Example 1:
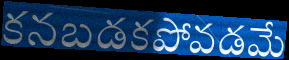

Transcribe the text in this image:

కనబడకపోవడమే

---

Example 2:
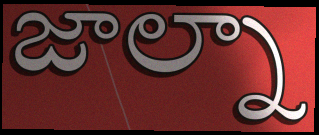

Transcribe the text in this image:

జాల్నా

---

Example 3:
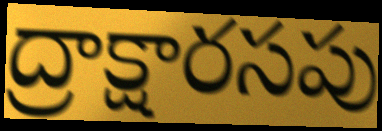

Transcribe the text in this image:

ద్రాక్షారసపు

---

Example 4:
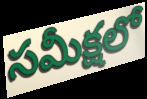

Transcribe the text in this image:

సమీక్షలో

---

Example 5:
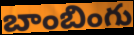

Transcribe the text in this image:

బాంబింగు